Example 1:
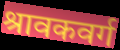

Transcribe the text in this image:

श्रावकवर्ग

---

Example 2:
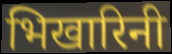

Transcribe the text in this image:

भिखारिनी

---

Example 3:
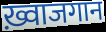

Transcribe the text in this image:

ख़्वाजगान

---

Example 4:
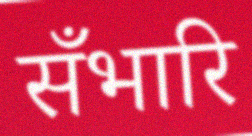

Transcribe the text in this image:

सँभारि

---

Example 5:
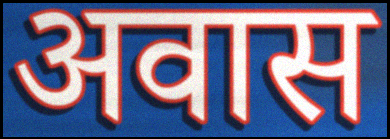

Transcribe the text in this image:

अवास